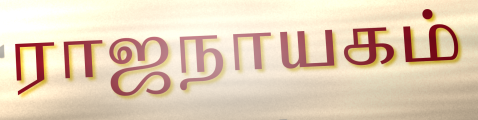
ராஜநாயகம்